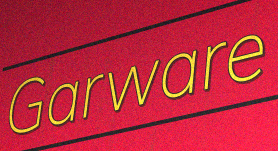
Garware